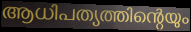
ആധിപത്യത്തിന്റെയും